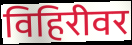
विहिरीवर